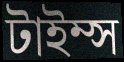
টাইম্স